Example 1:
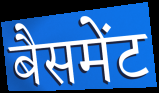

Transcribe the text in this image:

बैसमेंट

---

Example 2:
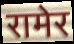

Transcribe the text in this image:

रामेर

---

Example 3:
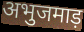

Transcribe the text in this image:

अभुजमाड़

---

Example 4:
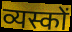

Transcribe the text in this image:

व्यस्कों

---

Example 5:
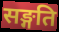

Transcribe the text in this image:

सङ्गति